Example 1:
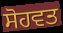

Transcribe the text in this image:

ਸੋਹਵਤ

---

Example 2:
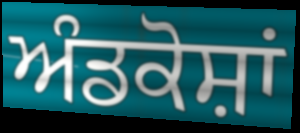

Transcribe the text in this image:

ਅੰਡਕੋਸ਼ਾਂ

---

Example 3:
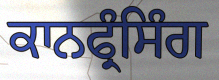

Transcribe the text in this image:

ਕਾਨਫ੍ਰੰਸਿੰਗ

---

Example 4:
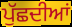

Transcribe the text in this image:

ਪੁੱਛਦੀਆਂ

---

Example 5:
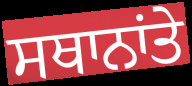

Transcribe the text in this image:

ਸਥਾਨਾਂਤੇ